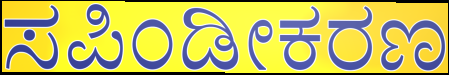
ಸಪಿಂಡೀಕರಣ